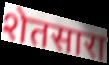
शेतसारा